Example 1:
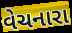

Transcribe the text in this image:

વેચનારા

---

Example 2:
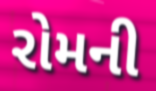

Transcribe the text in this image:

રોમની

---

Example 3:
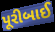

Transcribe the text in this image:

પૂરીબાઈ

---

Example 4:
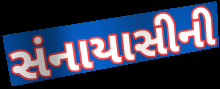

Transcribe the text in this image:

સંનાયાસીની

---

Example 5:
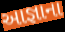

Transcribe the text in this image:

આજ્ઞાના